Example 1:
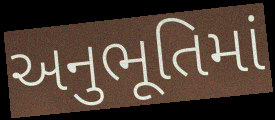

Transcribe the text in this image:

અનુભૂતિમાં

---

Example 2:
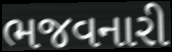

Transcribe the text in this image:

ભજવનારી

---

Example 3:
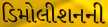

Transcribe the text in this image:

ડિમોલીશનની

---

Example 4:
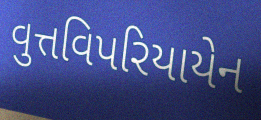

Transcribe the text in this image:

વુત્તવિપરિયાયેન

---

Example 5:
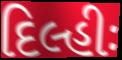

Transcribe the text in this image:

દિલ્હીઃ